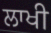
ਲਾਖੀ